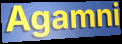
Agamni